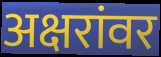
अक्षरांवर